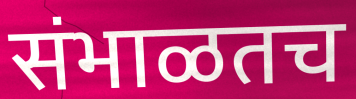
संभाळतच